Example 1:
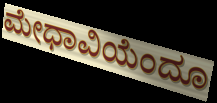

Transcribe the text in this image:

ಮೇಧಾವಿಯೆಂದೂ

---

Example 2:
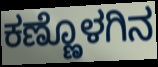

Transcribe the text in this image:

ಕಣ್ಣೊಳಗಿನ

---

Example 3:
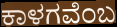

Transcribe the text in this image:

ಕಾಳಗವೆಂಬ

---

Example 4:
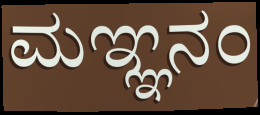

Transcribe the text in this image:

ಮಞ್ಞನಂ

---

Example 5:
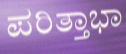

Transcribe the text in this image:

ಪರಿತ್ತಾಭಾ